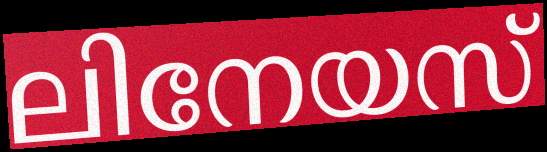
ലിനേയസ്